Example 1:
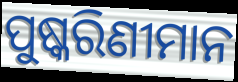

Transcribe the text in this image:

ପୁଷ୍କରିଣୀମାନ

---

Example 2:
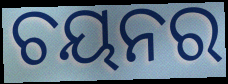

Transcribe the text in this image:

ଚୟନର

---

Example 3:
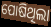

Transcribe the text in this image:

ପୋଷିଥିଲା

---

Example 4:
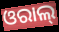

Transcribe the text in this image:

ଓରାଲ୍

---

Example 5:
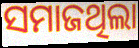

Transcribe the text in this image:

ସମାଜଥିଲା